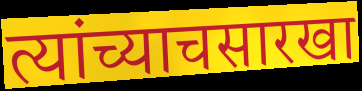
त्यांच्याचसारखा